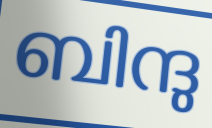
ബിന്ദു